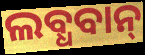
ଲବ୍ଧବାନ୍